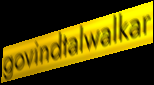
govindtalwalkar